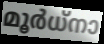
മൂർധ്നാ